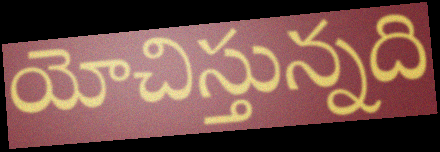
యోచిస్తున్నది